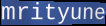
mrityune